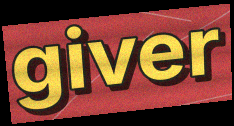
giver